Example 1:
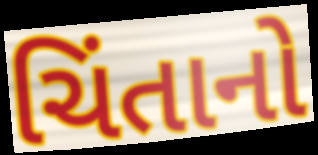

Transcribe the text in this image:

ચિંતાનો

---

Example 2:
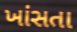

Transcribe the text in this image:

ખાંસતા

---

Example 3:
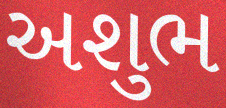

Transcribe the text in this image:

અશુભ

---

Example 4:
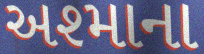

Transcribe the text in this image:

અશ્માના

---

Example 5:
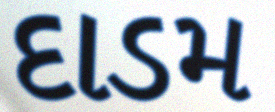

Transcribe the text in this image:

દાડમ